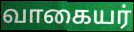
வாகையர்